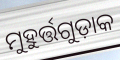
ମୁହୁର୍ତ୍ତଗୁଡ଼ାକ